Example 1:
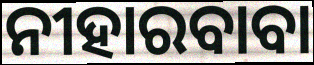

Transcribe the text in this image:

ନୀହାରବାବା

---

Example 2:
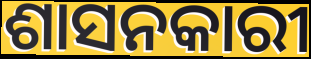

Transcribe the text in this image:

ଶାସନକାରୀ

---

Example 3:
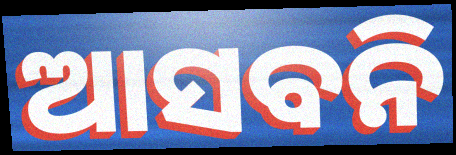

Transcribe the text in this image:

ଆସବନି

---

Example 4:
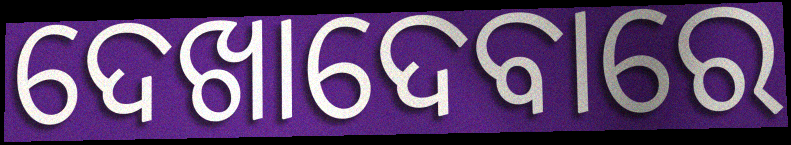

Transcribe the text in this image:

ଦେଖାଦେବାରେ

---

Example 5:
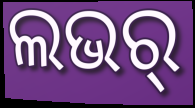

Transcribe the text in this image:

ଲଭର୍